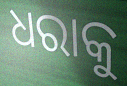
ଧରାକୁ